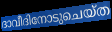
ദാവീദിനോടുചെയ്ത